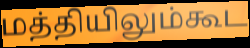
மத்தியிலும்கூட